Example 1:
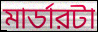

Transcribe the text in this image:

মার্ডারটা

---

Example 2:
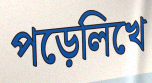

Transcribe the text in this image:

পড়েলিখে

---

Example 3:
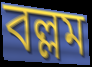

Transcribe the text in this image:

বল্লম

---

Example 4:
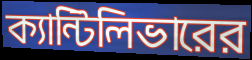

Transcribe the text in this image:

ক্যান্টিলিভারের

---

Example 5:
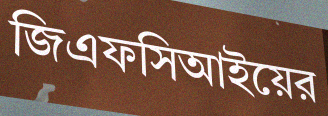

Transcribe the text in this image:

জিএফসিআইয়ের